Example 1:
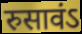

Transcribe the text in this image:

रुसावंऽ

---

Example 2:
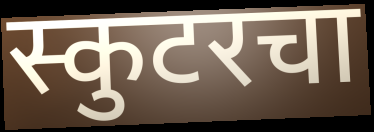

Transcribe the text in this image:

स्कुटरचा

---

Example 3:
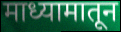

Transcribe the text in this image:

माध्यामातून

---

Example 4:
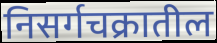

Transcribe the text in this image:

निसर्गचक्रातील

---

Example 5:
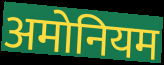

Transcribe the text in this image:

अमोनियम